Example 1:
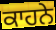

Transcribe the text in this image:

ਕਾਹਨੇ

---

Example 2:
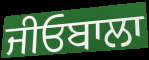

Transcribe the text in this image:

ਜੀਓਬਾਲਾ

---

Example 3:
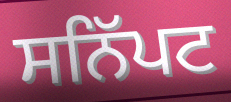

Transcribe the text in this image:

ਸਨਿੱਪਟ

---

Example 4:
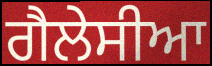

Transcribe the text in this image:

ਗੈਲੇਸੀਆ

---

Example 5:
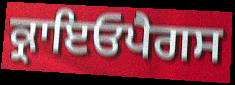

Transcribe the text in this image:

ਕ੍ਰਾਇਓਪੈਗਸ